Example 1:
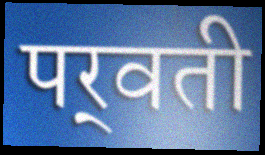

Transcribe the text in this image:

पर्वती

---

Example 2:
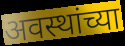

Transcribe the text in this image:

अवस्थांच्या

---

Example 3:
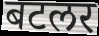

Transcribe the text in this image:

बटलर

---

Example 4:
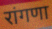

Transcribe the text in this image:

रांगणा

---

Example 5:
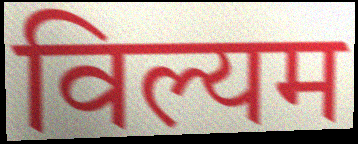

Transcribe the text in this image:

विल्यम